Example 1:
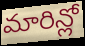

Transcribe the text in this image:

మారిన్లో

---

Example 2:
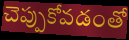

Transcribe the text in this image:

చెప్పుకోవడంతో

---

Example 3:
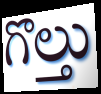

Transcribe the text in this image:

గొల్తు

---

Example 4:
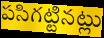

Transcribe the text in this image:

పసిగట్టినట్లు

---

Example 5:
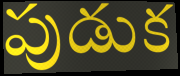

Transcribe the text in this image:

పుడుక